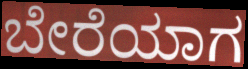
ಬೇರೆಯಾಗ